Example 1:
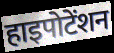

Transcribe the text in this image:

हाइपोटेंशन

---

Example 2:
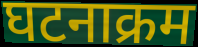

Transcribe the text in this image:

घटनाक्रम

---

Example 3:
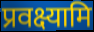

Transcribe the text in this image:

प्रवक्ष्यामि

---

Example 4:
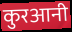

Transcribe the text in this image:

कुरआनी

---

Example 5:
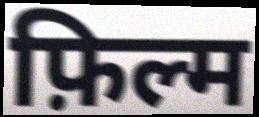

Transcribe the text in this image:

फ़िल्म